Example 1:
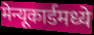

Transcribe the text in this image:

मेन्यूकार्डमध्ये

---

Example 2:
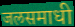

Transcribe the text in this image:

जलसमाधी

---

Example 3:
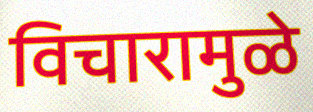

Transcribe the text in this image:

विचारामुळे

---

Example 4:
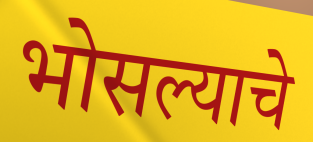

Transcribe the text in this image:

भोसल्याचे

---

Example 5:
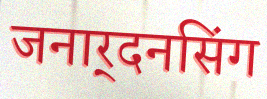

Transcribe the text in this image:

जनार्दनसिंग